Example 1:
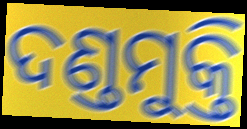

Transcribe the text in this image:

ଦଣ୍ଡମୁକ୍ତି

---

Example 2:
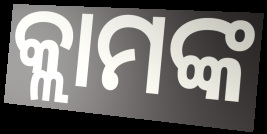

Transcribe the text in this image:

କ୍ଲାମଙ୍କ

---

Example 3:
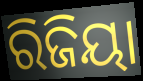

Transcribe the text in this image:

ରିଜିୟା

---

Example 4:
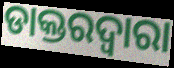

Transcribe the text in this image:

ଡାକ୍ତରଦ୍ୱାରା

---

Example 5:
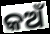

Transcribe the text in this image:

କଅଁ